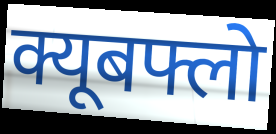
क्यूबफ्लो